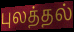
புலத்தல்